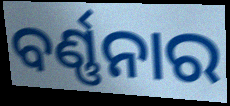
ବର୍ଣ୍ଣନାର